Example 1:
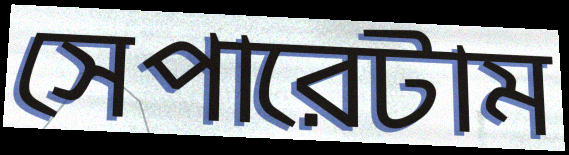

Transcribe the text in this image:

সেপারেটাম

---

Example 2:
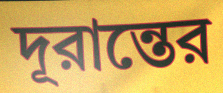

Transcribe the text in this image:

দূরান্তের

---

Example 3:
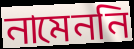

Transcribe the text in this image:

নামেননি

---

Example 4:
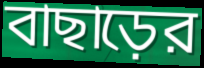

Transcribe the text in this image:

বাছাড়ের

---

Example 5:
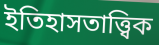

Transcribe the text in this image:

ইতিহাসতাত্ত্বিক